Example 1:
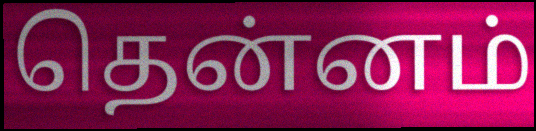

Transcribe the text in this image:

தென்னம்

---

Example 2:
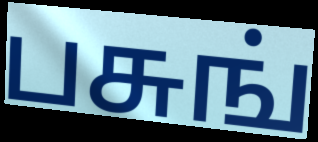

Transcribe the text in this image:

பசுங்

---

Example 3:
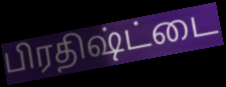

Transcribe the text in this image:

பிரதிஷ்ட்டை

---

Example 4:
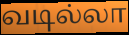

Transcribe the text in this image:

வடில்லா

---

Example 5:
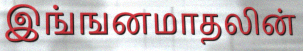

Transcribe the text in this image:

இங்ஙனமாதலின்